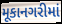
મૂકાનગરીમાં